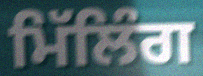
ਮਿੱਲਿੰਗ